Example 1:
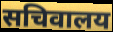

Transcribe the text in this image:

सचिवालय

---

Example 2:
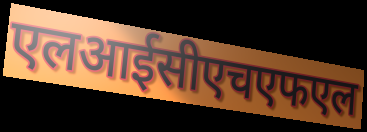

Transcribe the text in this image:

एलआईसीएचएफएल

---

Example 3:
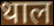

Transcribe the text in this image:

थाल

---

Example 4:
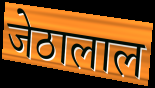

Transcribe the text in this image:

जेठालाल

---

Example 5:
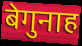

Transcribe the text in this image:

बेगुनाह